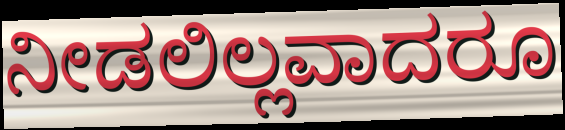
ನೀಡಲಿಲ್ಲವಾದರೂ